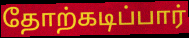
தோற்கடிப்பார்